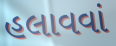
હલાવવાં